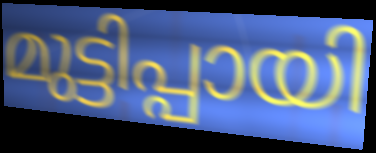
മുട്ടിപ്പായി